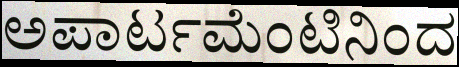
ಅಪಾರ್ಟಮೆಂಟಿನಿಂದ